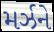
મર્ઝને